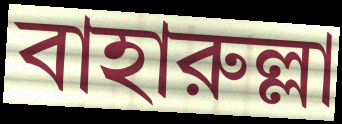
বাহারুল্লা